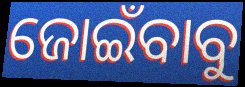
ଜୋଇଁବାବୁ